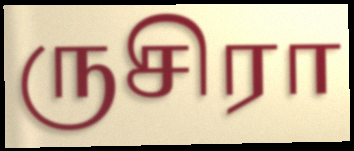
ருசிரா